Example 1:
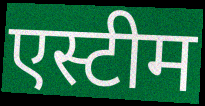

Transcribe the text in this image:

एस्टीम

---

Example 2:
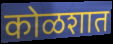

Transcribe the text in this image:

कोळशात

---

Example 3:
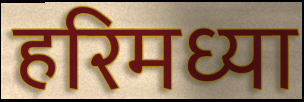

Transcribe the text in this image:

हरिमध्या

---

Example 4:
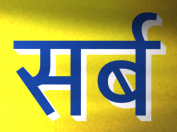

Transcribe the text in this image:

सर्ब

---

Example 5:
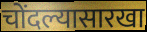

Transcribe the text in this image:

चोंदल्यासारखा